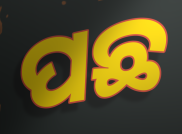
ପଛ